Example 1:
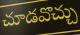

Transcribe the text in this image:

చూడవొచ్చు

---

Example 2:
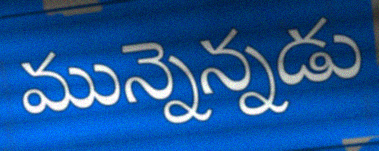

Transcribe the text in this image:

మున్నెన్నడు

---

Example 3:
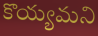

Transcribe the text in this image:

కొయ్యమని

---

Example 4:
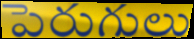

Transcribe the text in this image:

పెరుగులు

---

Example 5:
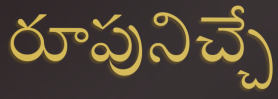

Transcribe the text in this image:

రూపునిచ్చే